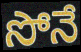
సోనే